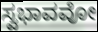
ಸ್ವಭಾವವೋ